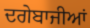
ਦਗੇਬਾਜੀਆਂ